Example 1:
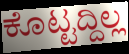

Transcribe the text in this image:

ಕೊಟ್ಟದ್ದಿಲ್ಲ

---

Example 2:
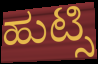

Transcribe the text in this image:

ಹುಟ್ಸಿ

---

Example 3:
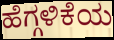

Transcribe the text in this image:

ಹೆಗ್ಗಳಿಕೆಯ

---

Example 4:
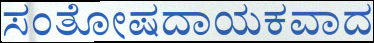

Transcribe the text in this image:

ಸಂತೋಷದಾಯಕವಾದ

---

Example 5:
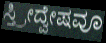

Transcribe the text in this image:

ಸ್ತ್ರೀದ್ವೇಷವೂ